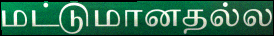
மட்டுமானதல்ல